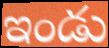
ఇండు